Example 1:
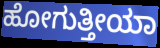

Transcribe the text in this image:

ಹೋಗುತ್ತೀಯಾ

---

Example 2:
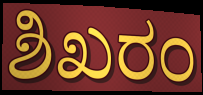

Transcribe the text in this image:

ಶಿಖರಂ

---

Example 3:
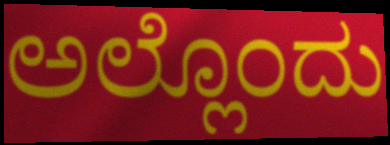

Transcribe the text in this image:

ಅಲ್ಲೊಂದು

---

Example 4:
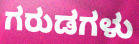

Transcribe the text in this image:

ಗರುಡಗಳು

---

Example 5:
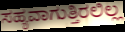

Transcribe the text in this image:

ಸಹ್ಯವಾಗುತ್ತಿರಲಿಲ್ಲ